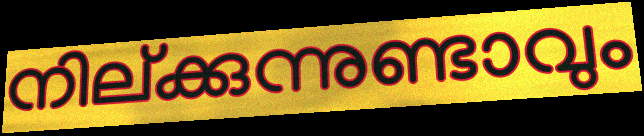
നില്ക്കുന്നുണ്ടാവും